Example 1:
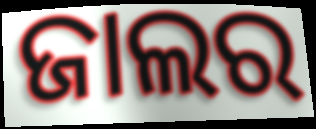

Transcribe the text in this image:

ଜାଲର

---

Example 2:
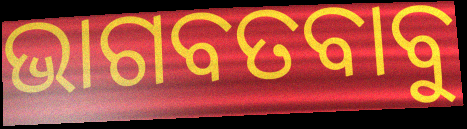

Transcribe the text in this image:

ଭାଗବତବାବୁ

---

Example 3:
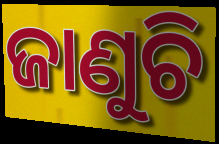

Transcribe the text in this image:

ଜାଣୁଚି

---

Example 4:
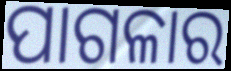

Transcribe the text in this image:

ପାଗଳାର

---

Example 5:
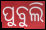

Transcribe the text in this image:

ପୁବୁଲି